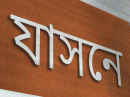
যাসনে